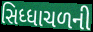
સિધ્ધાચળની